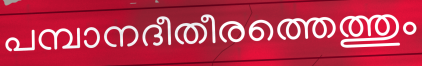
പമ്പാനദീതീരത്തെത്തും